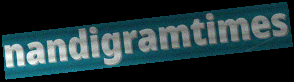
nandigramtimes